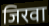
जिरवा